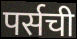
पर्सची